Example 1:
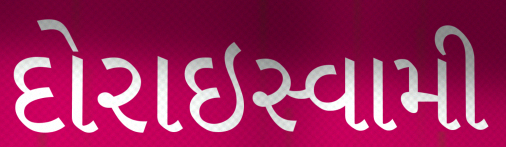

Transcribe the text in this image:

દોરાઇસ્વામી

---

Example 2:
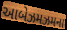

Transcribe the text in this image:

આબેઝમઝમના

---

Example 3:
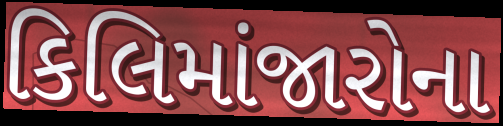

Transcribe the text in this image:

કિલિમાંજારોના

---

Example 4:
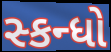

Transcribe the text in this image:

સ્કન્ધો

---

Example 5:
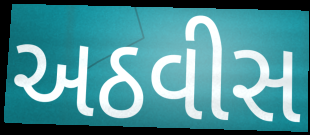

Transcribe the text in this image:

અઠવીસ